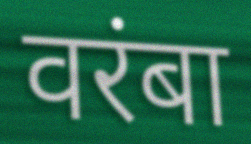
वरंबा